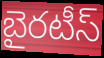
బైరటీస్